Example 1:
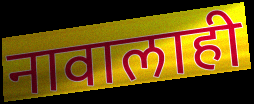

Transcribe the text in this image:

नावालाही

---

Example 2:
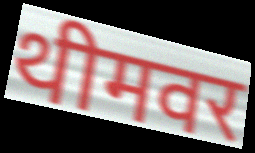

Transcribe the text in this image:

थीमवर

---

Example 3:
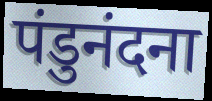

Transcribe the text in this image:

पंडुनंदना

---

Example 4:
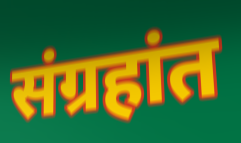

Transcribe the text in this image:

संग्रहांत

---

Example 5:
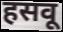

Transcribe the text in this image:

हसवू